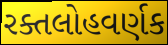
રક્તલોહવર્ણક